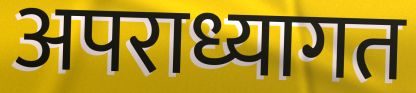
अपराध्यागत